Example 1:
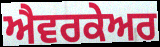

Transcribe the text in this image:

ਐਵਰਕੇਅਰ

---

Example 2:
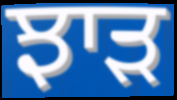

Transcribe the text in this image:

ਝਾੜ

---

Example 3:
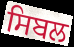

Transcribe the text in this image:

ਸਿਬਲ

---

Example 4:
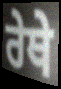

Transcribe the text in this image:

ਰੇਥੇ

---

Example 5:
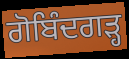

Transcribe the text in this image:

ਗੋਬਿੰਦਗੜ੍ਹ